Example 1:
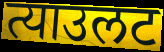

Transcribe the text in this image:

त्याउलट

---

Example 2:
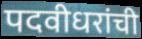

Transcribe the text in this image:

पदवीधरांची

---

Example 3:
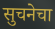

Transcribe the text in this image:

सुचनेचा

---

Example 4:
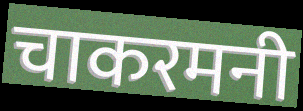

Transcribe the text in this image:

चाकरमनी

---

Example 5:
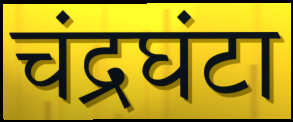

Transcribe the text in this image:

चंद्रघंटा